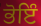
ਭੋਇੰ